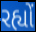
રહ્યોં